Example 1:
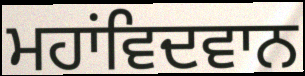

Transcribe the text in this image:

ਮਹਾਂਵਿਦਵਾਨ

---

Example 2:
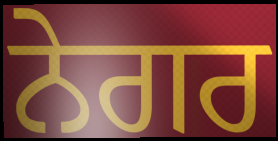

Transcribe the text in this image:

ਨੇਗਰ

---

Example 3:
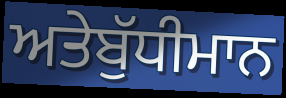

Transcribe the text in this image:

ਅਤੇਬੁੱਧੀਮਾਨ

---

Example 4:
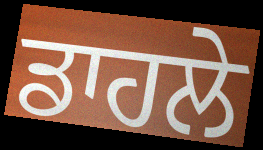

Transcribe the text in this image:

ਡਾਹਲੇ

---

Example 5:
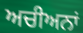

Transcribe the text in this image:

ਅਚੀਅਨਾਂ